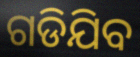
ଗଡିଯିବ